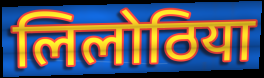
लिलोठिया